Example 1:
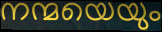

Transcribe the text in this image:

നന്മയെയും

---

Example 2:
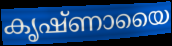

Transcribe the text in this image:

കൃഷ്ണായൈ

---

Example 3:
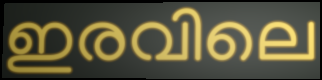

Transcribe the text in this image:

ഇരവിലെ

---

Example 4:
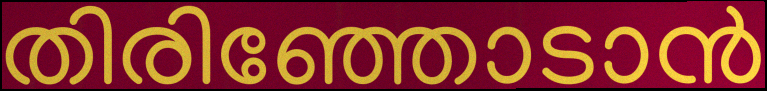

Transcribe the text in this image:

തിരിഞ്ഞോടാൻ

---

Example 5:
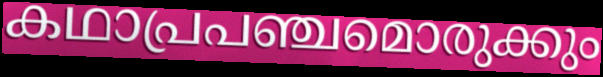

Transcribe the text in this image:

കഥാപ്രപഞ്ചമൊരുക്കും